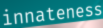
innateness